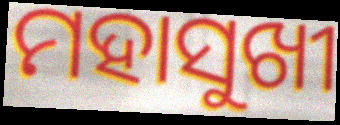
ମହାସୁଖୀ